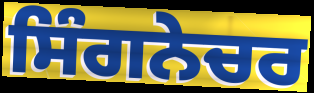
ਸਿੰਗਨੇਚਰ